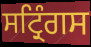
ਸਟ੍ਰਿੰਗਸ